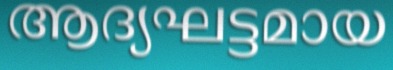
ആദ്യഘട്ടമായ